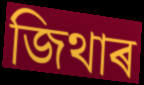
জিথাৰ